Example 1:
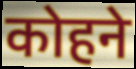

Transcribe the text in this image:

कोहने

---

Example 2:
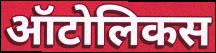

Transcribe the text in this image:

ऑटोलिकस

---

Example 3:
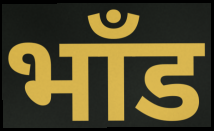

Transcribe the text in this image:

भाँड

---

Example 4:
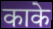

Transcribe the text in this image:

काके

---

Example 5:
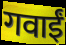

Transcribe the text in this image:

गवाईं